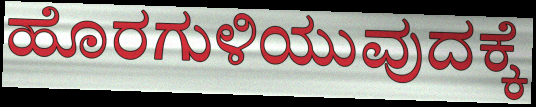
ಹೊರಗುಳಿಯುವುದಕ್ಕೆ